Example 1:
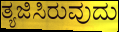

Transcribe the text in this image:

ತ್ಯಜಿಸಿರುವುದು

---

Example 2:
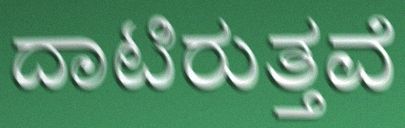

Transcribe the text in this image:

ದಾಟಿರುತ್ತವೆ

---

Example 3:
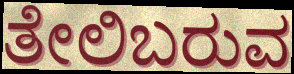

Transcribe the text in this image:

ತೇಲಿಬರುವ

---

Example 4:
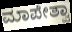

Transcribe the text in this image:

ಮಾಪೇತ್ವಾ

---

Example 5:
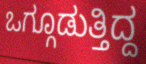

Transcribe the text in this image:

ಒಗ್ಗೂಡುತ್ತಿದ್ದ